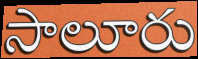
సాలూరు